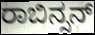
ರಾಬಿನ್ಸನ್